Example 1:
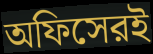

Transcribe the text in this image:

অফিসেরই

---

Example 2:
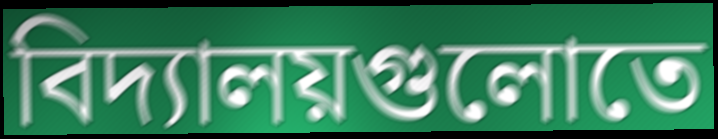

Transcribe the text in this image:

বিদ্যালয়গুলোতে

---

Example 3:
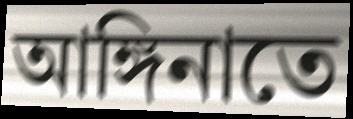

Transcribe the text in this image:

আঙ্গিনাতে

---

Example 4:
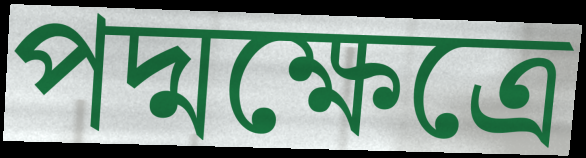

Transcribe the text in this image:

পদ্মক্ষেত্রে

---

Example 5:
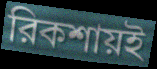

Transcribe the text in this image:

রিকশায়ই